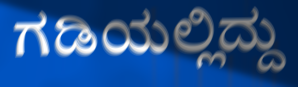
ಗಡಿಯಲ್ಲಿದ್ದು